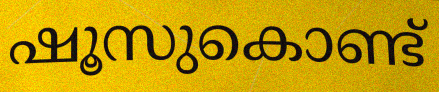
ഷൂസുകൊണ്ട്